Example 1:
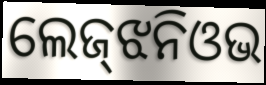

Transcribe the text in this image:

ଲେଜ୍‌ଝନିଓଭ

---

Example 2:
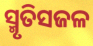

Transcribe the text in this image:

ସ୍ମୃତିସଜଳ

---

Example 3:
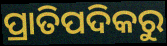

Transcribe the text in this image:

ପ୍ରାତିପଦିକରୁ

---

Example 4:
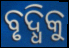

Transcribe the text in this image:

ବୃଦ୍ଧିକୁ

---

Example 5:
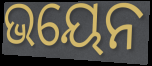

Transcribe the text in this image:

ଭୟେନ